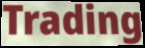
Trading